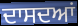
ਦਾਸਦਆਂ